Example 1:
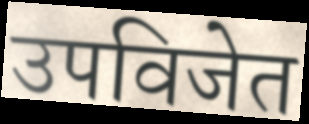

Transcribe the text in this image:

उपविजेत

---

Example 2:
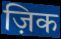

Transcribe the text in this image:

ज़िक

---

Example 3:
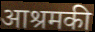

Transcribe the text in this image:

आश्रमकी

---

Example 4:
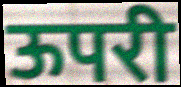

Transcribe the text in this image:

ऊपरी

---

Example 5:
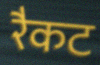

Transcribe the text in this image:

रैकट